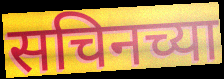
सचिनच्या